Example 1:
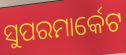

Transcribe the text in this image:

ସୁପରମାର୍କେଟ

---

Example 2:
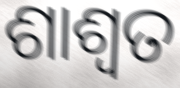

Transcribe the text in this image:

ଶାଶ୍ଵତ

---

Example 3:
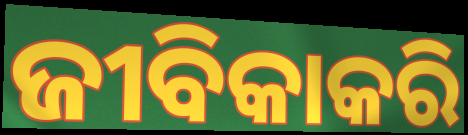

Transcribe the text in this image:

ଜୀବିକାକରି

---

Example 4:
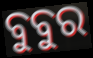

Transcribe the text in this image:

ବୁବୁର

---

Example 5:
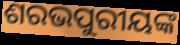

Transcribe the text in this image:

ଶରଭପୁରୀୟଙ୍କ